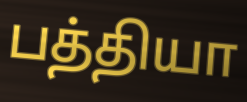
பத்தியா